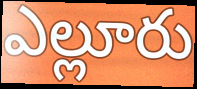
ఎల్లూరు